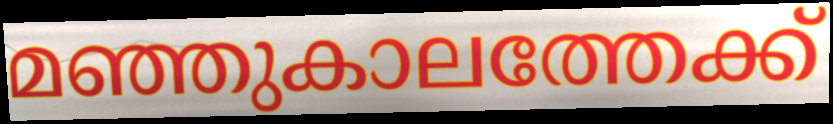
മഞ്ഞുകാലത്തേക്ക്